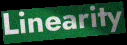
Linearity